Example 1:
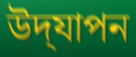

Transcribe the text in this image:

উদ্‌যাপন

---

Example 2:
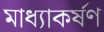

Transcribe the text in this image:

মাধ্যাকৰ্ষণ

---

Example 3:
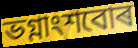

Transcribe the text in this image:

ভগ্নাংশবোৰ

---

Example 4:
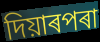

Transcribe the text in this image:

দিয়াৰপৰা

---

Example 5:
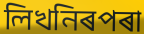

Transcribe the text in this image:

লিখনিৰপৰা